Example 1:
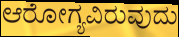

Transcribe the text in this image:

ಆರೋಗ್ಯವಿರುವುದು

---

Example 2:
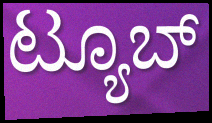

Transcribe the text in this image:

ಟ್ಯೂಬ್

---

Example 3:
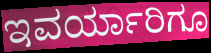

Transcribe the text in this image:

ಇವರ್ಯಾರಿಗೂ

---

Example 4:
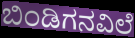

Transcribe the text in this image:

ಬಿಂಡಿಗನವಿಲೆ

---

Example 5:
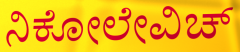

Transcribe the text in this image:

ನಿಕೋಲೇವಿಚ್